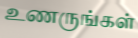
உணருங்கள்